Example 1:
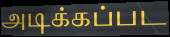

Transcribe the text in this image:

அடிக்கப்பட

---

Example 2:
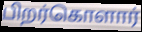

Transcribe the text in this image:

பிறர்கொளார்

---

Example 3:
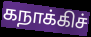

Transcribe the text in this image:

கநாக்கிச்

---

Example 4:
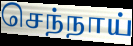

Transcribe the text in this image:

செந்நாய்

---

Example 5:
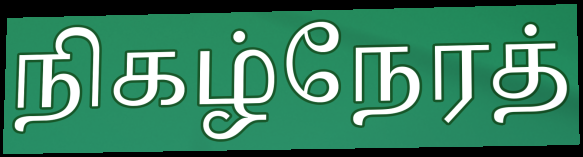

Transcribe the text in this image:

நிகழ்நேரத்